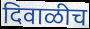
दिवाळीच